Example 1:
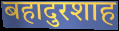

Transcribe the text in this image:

बहादुरशाह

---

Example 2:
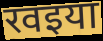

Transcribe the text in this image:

रवइया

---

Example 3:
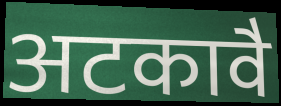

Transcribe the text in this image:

अटकावै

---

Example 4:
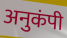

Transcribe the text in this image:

अनुकंपी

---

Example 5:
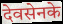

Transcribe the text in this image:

देवसेनके